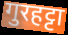
गुरहट्टा